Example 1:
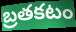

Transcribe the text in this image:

బ్రతకటం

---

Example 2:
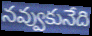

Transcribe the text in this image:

నవ్వుకునేది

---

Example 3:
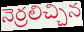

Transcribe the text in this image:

నెర్రలిచ్చిన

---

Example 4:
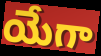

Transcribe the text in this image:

యేగా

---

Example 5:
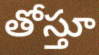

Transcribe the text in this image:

తోస్తూ